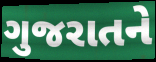
ગુજરાતને